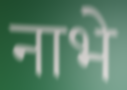
नाभे